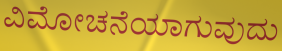
ವಿಮೋಚನೆಯಾಗುವುದು